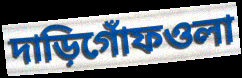
দাড়িগোঁফওলা